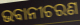
ଭବାନୀଚରଣ